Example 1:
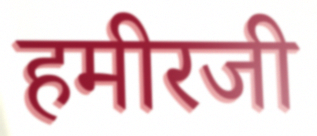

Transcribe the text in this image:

हमीरजी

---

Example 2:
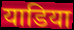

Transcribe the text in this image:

याडिया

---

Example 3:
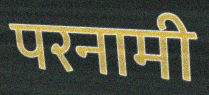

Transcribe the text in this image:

परनामी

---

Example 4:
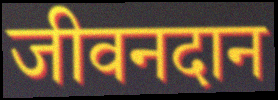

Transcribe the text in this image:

जीवनदान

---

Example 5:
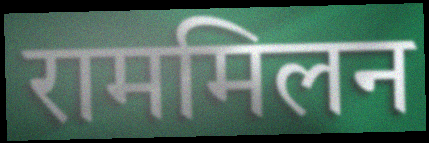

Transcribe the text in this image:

राममिलन